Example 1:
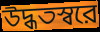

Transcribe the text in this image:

উদ্ধতস্বরে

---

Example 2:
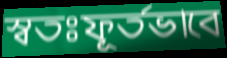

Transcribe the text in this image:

স্বতঃফূর্তভাবে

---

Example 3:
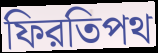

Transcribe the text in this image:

ফিরতিপথ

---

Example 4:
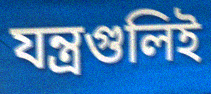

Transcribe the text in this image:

যন্ত্রগুলিই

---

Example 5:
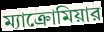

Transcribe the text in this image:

ম্যাক্রোমিয়ার